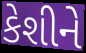
કેશીને